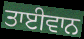
ਤਾਈਵਾਨ